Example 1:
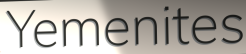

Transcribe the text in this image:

Yemenites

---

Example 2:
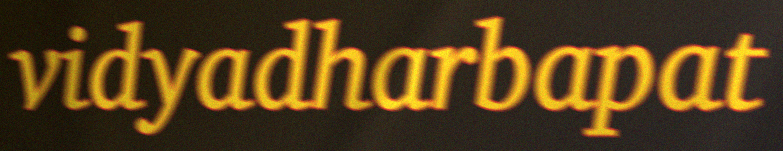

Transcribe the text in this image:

vidyadharbapat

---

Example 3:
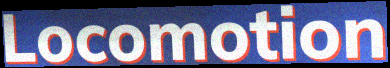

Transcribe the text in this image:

Locomotion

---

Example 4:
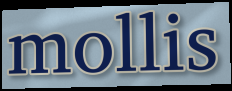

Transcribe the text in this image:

mollis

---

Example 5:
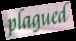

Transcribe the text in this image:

plagued